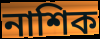
নাশিক